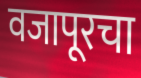
वजापूरचा